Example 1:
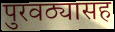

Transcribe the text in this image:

पुरवठ्यासह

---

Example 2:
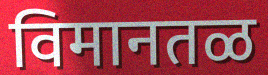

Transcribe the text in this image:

विमानतळ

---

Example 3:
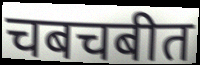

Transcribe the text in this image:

चबचबीत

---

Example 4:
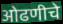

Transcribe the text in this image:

ओढणीचे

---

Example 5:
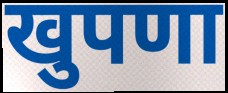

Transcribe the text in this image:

खुपणा